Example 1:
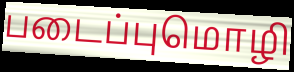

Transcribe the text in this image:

படைப்புமொழி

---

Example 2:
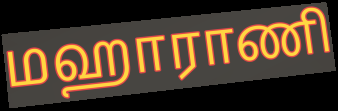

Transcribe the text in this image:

மஹாராணி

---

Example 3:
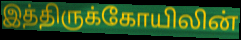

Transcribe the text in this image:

இத்திருக்கோயிலின்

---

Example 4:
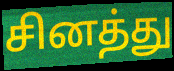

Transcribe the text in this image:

சினத்து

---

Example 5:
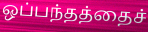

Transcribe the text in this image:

ஒப்பந்தத்தைச்